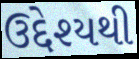
ઉદ્દેશ્યથી